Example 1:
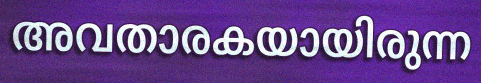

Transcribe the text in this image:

അവതാരകയായിരുന്ന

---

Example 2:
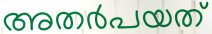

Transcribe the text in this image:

അതർപയത്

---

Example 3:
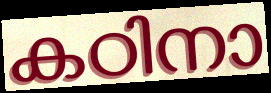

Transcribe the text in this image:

കഠിനാ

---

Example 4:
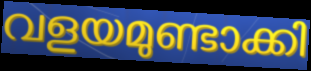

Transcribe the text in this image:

വളയമുണ്ടാക്കി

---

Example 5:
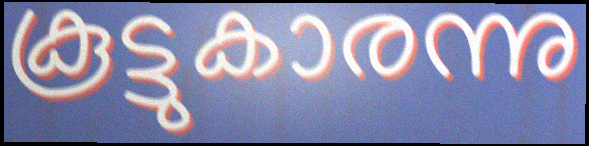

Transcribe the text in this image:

കൂട്ടുകാരന്നു